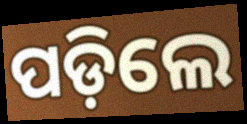
ପଡ଼ିଲେ